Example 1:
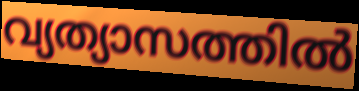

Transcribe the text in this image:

വ്യത്യാസത്തിൽ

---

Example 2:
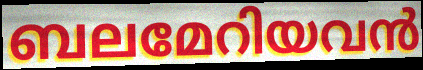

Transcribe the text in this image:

ബലമേറിയവൻ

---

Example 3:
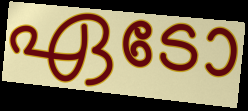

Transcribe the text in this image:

ഏടോ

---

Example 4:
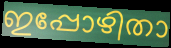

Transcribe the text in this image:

ഇപ്പോഴിതാ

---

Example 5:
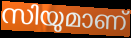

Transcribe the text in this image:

സിയുമാണ്